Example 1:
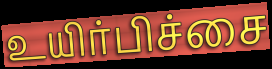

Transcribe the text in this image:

உயிர்பிச்சை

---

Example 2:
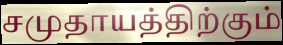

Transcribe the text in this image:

சமுதாயத்திற்கும்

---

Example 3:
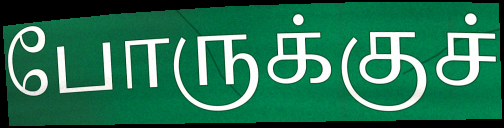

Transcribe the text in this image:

போருக்குச்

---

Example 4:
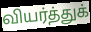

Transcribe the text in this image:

வியர்த்துக்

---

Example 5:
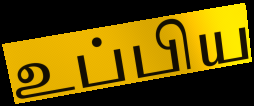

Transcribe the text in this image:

உப்பிய